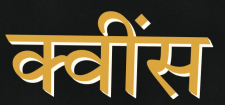
क्वींस